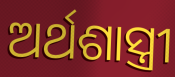
ଅର୍ଥଶାସ୍ତ୍ରୀ